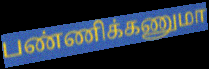
பண்ணிக்கணுமா